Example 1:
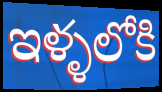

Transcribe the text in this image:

ఇళ్ళలోకి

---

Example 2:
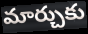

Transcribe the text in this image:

మార్చుకు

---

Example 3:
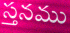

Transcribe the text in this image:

స్తనము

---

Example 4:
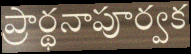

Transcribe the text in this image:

ప్రార్థనాపూర్వక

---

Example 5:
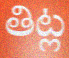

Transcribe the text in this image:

తిట్ల